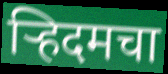
ऱ्हिदमचा